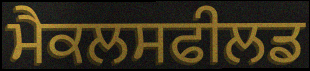
ਮੈਕਲਸਫੀਲਡ